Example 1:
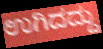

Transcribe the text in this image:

ಉಗಿದದ್ದು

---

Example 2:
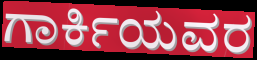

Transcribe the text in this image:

ಗಾರ್ಕಿಯವರ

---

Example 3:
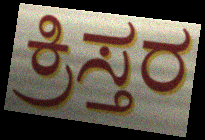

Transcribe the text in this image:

ಕ್ರಿಸ್ತರ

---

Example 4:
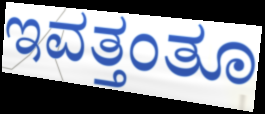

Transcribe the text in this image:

ಇವತ್ತಂತೂ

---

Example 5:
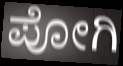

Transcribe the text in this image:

ಪೋಗಿ